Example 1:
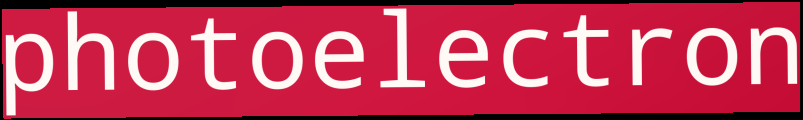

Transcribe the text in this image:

photoelectron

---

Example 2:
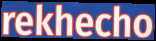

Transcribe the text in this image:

rekhecho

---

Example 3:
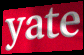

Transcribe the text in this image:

yate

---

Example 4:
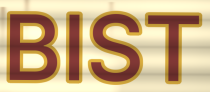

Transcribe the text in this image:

BIST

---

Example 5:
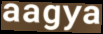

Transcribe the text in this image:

aagya